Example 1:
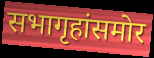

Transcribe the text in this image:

सभागृहांसमोर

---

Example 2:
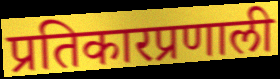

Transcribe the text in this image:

प्रतिकारप्रणाली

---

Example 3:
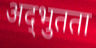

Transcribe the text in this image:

अद्‌भुतता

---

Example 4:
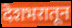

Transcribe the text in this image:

देशभरातून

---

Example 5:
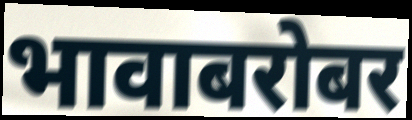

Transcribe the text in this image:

भावाबरोबर